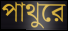
পাথুরে